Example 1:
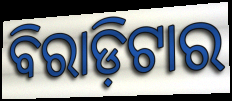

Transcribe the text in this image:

ବିରାଡ଼ିଟାର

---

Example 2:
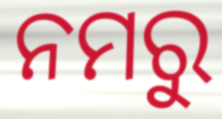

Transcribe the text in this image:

ନମରୁ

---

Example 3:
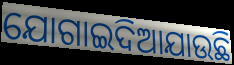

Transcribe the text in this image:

ଯୋଗାଇଦିଆଯାଉଛି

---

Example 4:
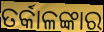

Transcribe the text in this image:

ତର୍କାଳଙ୍କାର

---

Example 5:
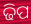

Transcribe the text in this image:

ଢିପ